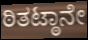
ಠಿತಟ್ಠಾನೇ